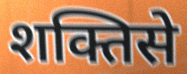
शक्तिसे